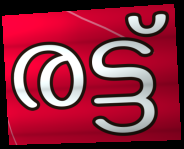
രട്ട്